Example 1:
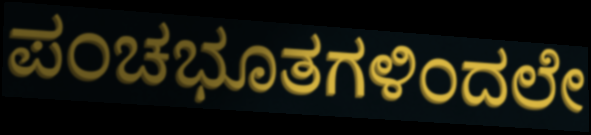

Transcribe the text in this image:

ಪಂಚಭೂತಗಳಿಂದಲೇ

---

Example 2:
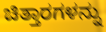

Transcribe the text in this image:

ಚಿತ್ತಾರಗಳನ್ನು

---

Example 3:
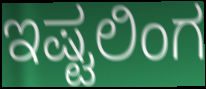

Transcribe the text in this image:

ಇಷ್ಟಲಿಂಗ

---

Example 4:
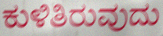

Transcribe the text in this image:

ಕುಳಿತಿರುವುದು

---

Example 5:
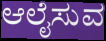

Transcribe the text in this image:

ಆಲೈಸುವ